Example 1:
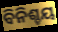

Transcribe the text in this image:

ବିନିଶ୍ଚୟ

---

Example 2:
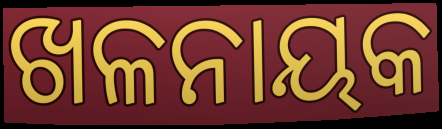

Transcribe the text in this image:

ଖଳନାୟକ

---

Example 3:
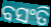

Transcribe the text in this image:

ବସଂତି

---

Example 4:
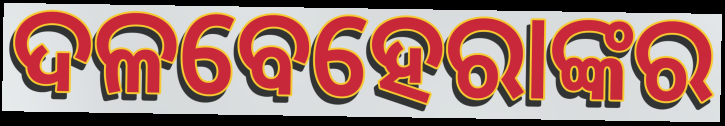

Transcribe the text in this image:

ଦଳବେହେରାଙ୍କର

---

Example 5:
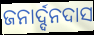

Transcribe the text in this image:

ଜନାର୍ଦ୍ଦନଦାସ